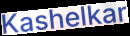
Kashelkar